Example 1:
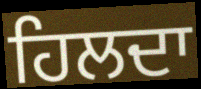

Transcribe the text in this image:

ਹਿਲਦਾ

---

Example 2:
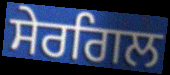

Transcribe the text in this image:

ਸੇਰਗਿਲ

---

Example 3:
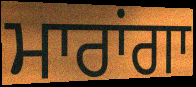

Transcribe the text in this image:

ਮਾਰਾਂਗਾ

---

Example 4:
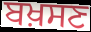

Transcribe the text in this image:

ਬਖ਼ਸਣ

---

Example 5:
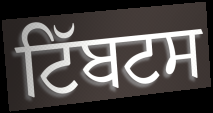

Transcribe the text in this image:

ਟਿੱਬਟਸ